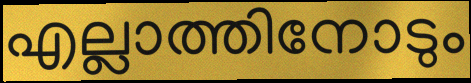
എല്ലാത്തിനോടും